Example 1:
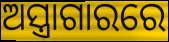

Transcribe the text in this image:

ଅସ୍ତ୍ରାଗାରରେ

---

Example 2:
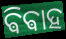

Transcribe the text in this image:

ଵିଵାହ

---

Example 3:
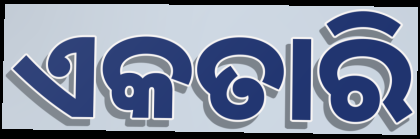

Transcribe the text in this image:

ଏକତାରି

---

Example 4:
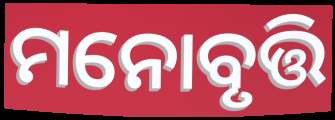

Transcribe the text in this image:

ମନୋବୃତ୍ତି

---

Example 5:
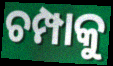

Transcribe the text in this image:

ଚମ୍ପାକୁ